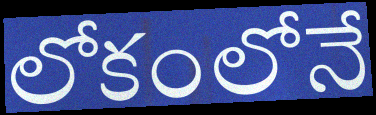
లోకంలోనే